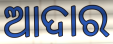
ଆଦାର